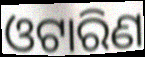
ଓଟାରିଣ